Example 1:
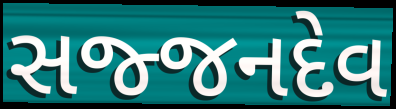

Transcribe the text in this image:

સજ્જનદેવ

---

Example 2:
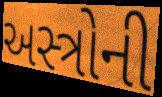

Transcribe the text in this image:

અસ્ત્રોની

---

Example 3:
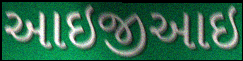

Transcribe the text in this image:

આઇજીઆઇ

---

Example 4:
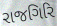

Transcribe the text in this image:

રાજગિરિ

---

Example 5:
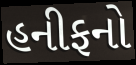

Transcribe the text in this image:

હનીફનો